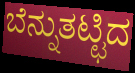
ಬೆನ್ನುತಟ್ಟಿದ